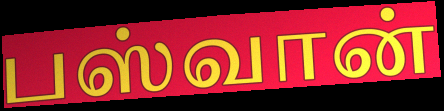
பஸ்வான்